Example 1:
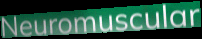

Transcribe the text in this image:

Neuromuscular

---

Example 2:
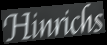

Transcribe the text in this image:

Hinrichs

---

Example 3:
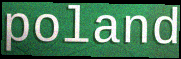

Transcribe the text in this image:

poland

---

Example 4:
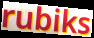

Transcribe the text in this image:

rubiks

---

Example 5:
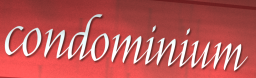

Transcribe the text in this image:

condominium